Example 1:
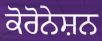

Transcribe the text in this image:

ਕੋਰੋਨੇਸ਼ਨ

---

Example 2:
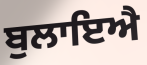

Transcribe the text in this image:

ਬੁਲਾਇਐ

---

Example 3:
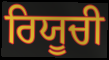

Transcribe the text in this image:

ਰਿਯੂਚੀ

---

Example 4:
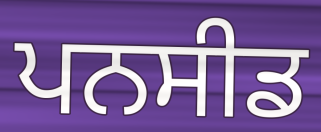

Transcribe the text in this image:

ਪਨਸੀਡ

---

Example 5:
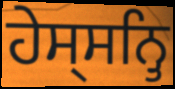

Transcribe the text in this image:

ਹੇਸ੍ਸਨ੍ਤਿ